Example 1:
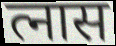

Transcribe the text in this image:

त्नास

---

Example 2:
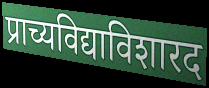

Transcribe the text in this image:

प्राच्यविद्याविशारद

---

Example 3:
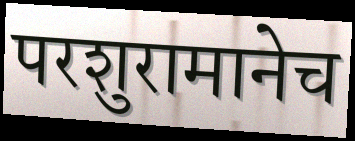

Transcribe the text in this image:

परशुरामानेच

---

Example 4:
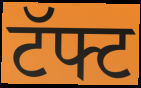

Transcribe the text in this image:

टॅफ्ट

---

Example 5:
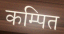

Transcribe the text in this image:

कम्पित